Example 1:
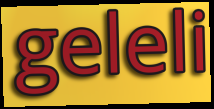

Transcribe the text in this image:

geleli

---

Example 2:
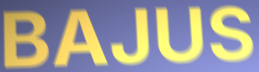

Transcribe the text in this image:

BAJUS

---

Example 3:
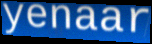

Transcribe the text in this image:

yenaar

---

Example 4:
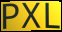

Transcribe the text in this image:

PXL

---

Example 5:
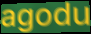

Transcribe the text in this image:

agodu